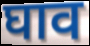
घाव